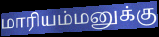
மாரியம்மனுக்கு